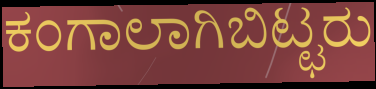
ಕಂಗಾಲಾಗಿಬಿಟ್ಟರು